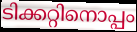
ടിക്കറ്റിനൊപ്പം